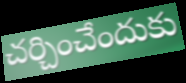
చర్చించేందుకు